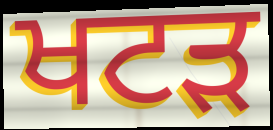
ਖਟੜ